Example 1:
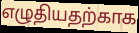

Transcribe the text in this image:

எழுதியதற்காக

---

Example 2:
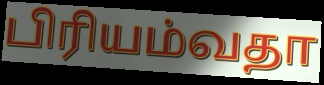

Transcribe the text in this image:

பிரியம்வதா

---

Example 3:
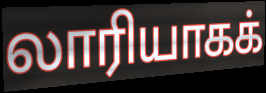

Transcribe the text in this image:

லாரியாகக்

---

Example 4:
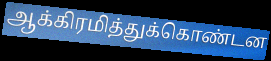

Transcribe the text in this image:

ஆக்கிரமித்துக்கொண்டன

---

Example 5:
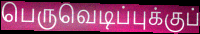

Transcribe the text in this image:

பெருவெடிப்புக்குப்